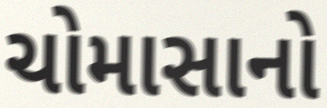
ચોમાસાનો